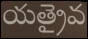
యత్రైవ